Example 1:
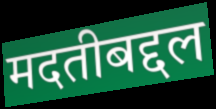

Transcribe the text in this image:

मदतीबद्दल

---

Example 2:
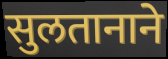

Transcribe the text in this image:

सुलतानाने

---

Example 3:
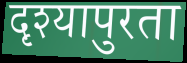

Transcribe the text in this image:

दृश्यापुरता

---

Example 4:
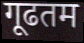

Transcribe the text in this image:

गूढतम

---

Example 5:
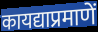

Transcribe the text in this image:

कायद्याप्रमाणें